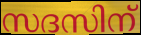
സദസിന്